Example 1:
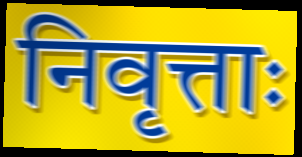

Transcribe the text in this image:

निवृत्ताः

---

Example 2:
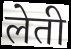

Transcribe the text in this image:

लेती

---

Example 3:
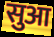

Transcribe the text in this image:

सुआ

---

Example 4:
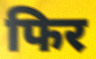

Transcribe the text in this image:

फिर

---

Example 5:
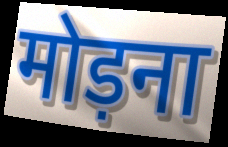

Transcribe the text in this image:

मोड़ना